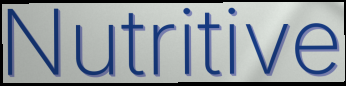
Nutritive